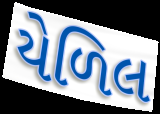
યેળિલ